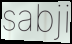
sabji